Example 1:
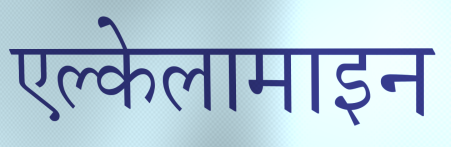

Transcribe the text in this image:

एल्केलामाइन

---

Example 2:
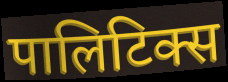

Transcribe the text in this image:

पालिटिक्स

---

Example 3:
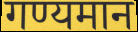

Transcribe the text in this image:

गण्यमान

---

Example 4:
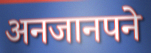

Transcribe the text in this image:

अनजानपने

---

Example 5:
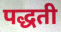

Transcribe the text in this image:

पद्धती